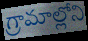
గ్రామాల్లోని